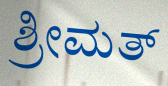
ಶ್ರೀಮತ್